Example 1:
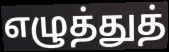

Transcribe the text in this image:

எழுத்துத்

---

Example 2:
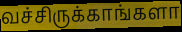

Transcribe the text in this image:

வச்சிருக்காங்களா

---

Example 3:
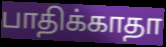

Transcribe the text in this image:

பாதிக்காதா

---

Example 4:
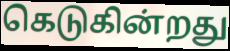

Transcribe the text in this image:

கெடுகின்றது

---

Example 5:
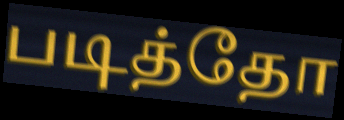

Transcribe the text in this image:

படித்தோ